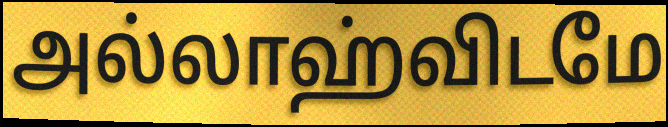
அல்லாஹ்விடமே